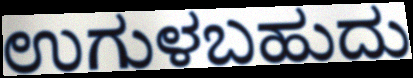
ಉಗುಳಬಹುದು